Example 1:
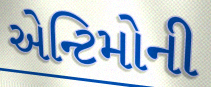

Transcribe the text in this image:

એન્ટિમોની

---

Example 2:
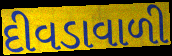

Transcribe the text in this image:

દીવડાવાળી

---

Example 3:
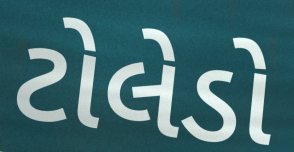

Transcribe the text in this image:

ટોલેડો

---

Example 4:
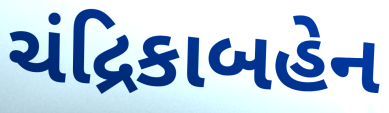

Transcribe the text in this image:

ચંદ્રિકાબહેન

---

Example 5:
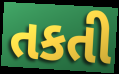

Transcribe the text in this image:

તકતી